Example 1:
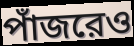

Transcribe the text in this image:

পাঁজরেও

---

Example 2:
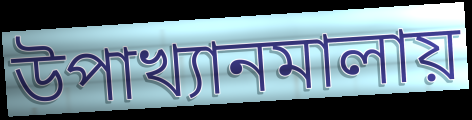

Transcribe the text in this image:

উপাখ্যানমালায়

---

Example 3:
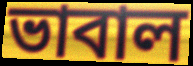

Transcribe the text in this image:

ভাবাল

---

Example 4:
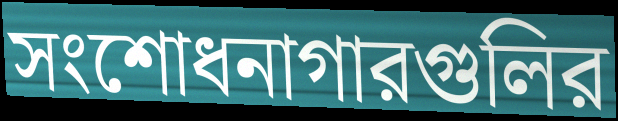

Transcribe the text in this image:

সংশোধনাগারগুলির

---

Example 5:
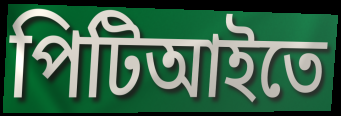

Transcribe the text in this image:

পিটিআইতে